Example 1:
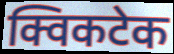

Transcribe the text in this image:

क्विकटेक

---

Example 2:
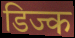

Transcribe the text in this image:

डिज्क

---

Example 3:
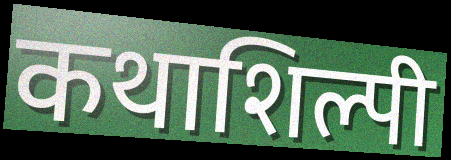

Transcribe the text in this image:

कथाशिल्पी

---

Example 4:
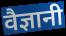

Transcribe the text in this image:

वैज्ञानी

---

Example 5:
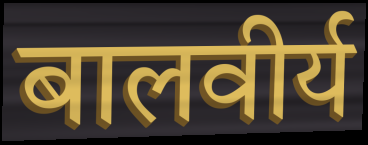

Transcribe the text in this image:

बालवीर्य